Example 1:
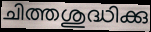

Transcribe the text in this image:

ചിത്തശുദ്ധിക്കു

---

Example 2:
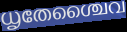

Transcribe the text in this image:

ധൃതേശ്ചൈവ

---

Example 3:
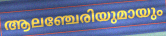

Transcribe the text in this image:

ആലഞ്ചേരിയുമായും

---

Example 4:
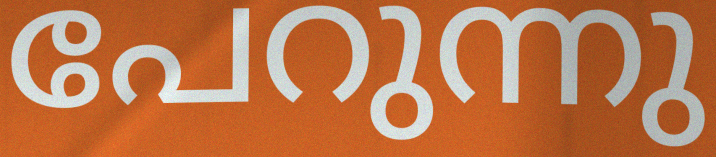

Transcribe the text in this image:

പേറുന്നു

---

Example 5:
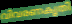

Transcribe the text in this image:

വിവരണകൃതി